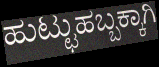
ಹುಟ್ಟುಹಬ್ಬಕ್ಕಾಗಿ